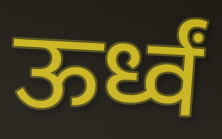
ऊर्ध्वं